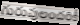
గురువులందరికీ